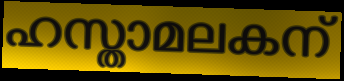
ഹസ്താമലകന്